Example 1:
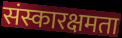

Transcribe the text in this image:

संस्कारक्षमता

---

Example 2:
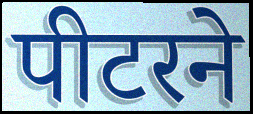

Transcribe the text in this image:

पीटरने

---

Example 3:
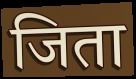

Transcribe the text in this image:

जिता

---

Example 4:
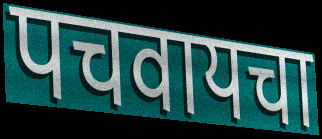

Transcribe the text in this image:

पचवायचा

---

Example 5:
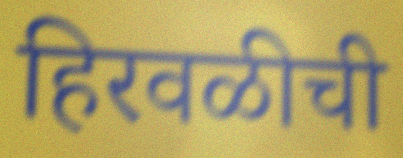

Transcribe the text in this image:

हिरवळीची